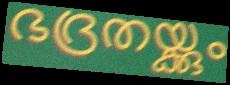
ഭദ്രതയ്ക്കും